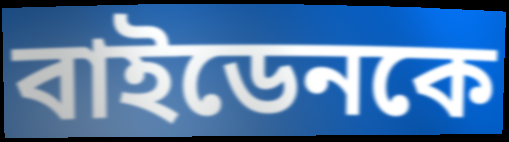
বাইডেনকে